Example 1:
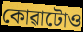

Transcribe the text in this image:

কোৱাটোও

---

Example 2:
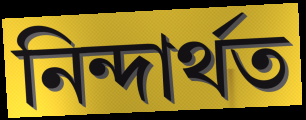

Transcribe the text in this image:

নিন্দাৰ্থত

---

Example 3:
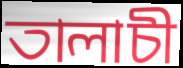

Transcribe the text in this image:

তালাচী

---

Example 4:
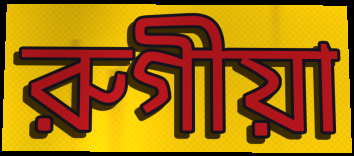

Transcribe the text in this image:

ৰুগীয়া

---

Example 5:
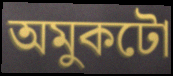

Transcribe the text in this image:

অমুকটো